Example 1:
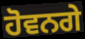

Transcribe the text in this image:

ਹੋਵਨਗੇ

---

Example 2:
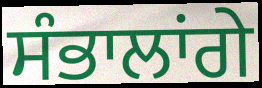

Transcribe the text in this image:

ਸੰਭਾਲਾਂਗੇ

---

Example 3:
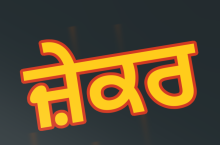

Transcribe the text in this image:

ਜ਼ੇਕਰ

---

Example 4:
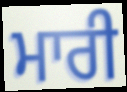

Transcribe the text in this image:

ਮਾਰੀ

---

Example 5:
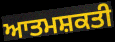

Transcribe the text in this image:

ਆਤਮਸ਼ਕਤੀ